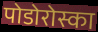
पोडोरोस्का